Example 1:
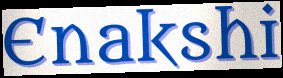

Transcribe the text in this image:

Enakshi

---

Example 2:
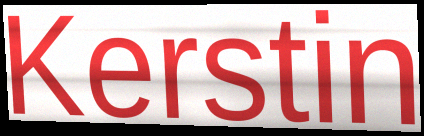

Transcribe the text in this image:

Kerstin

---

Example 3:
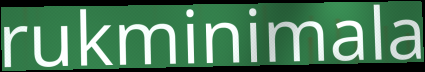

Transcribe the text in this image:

rukminimala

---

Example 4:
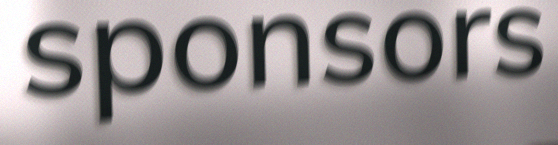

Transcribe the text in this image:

sponsors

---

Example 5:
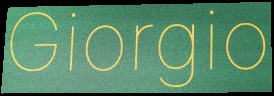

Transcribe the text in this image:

Giorgio